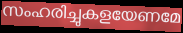
സംഹരിച്ചുകളയേണമേ